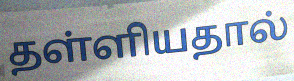
தள்ளியதால்